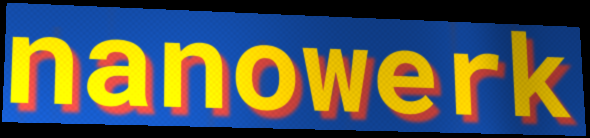
nanowerk